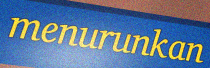
menurunkan